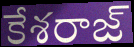
కేశరాజ్